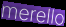
merello